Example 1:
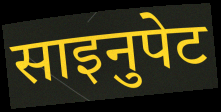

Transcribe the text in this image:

साइनुपेट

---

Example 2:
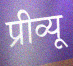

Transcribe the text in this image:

प्रीव्यू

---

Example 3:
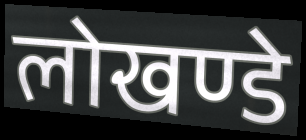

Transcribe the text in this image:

लोखण्डे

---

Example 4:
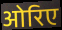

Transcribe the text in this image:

ओरिए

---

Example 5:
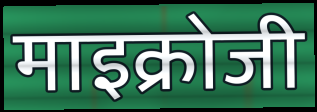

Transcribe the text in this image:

माइक्रोजी